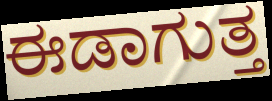
ಈಡಾಗುತ್ತ